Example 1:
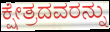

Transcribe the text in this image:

ಕ್ಷೇತ್ರದವರನ್ನು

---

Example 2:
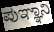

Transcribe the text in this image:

ಪುಞ್ಞಾನಿ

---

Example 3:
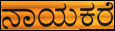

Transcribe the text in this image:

ನಾಯಕರೆ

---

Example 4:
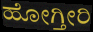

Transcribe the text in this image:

ಹೋಗ್ತೀರಿ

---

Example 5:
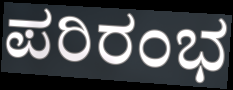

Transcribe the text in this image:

ಪರಿರಂಭ